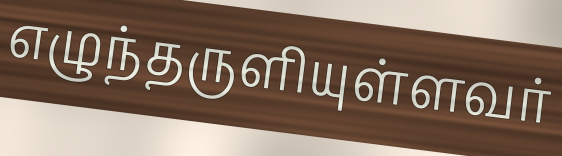
எழுந்தருளியுள்ளவர்